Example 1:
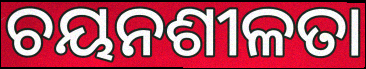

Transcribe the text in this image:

ଚୟନଶୀଳତା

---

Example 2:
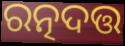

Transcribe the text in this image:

ରତ୍ନଦତ୍ତ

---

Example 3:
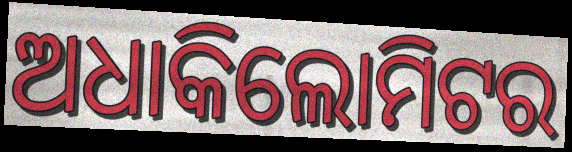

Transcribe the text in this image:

ଅଧାକିଲୋମିଟର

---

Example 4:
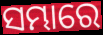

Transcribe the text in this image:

ସମ୍ଭାରେ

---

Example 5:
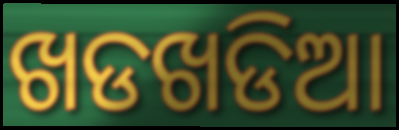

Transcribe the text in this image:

ଖଡଖଡିଆ